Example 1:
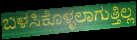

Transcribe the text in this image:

ಬಳಸಿಕೊಳ್ಳಲಾಗುತ್ತಿಲ್ಲ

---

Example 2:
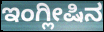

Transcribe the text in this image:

ಇಂಗ್ಲೀಷಿನ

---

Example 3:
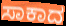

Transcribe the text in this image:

ಸಾಕಾದ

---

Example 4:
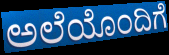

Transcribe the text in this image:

ಅಲೆಯೊಂದಿಗೆ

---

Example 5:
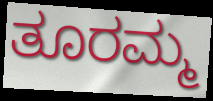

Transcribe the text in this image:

ತೂರಮ್ಮ